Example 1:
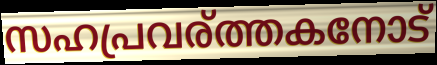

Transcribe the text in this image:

സഹപ്രവര്ത്തകനോട്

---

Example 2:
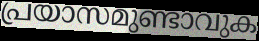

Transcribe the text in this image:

പ്രയാസമുണ്ടാവുക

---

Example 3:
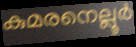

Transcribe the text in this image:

കുമരനെല്ലൂർ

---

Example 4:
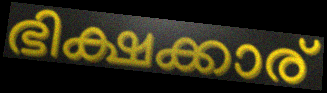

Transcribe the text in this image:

ഭിക്ഷക്കാര്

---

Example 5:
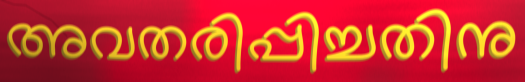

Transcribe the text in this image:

അവതരിപ്പിച്ചതിനു